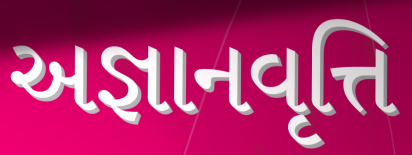
અજ્ઞાનવૃત્તિ